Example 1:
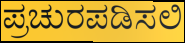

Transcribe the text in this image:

ಪ್ರಚುರಪಡಿಸಲಿ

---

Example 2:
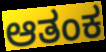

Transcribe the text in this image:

ಆತಂಕ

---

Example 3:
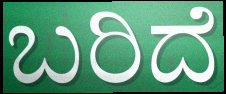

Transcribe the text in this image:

ಬರಿದೆ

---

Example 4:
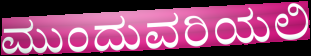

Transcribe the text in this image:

ಮುಂದುವರಿಯಲಿ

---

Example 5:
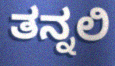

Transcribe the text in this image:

ತನ್ನಲಿ